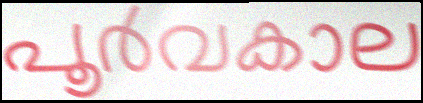
പൂർവകാല